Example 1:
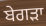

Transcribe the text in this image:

ਬੇਗੜਾ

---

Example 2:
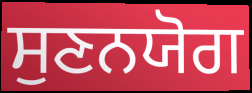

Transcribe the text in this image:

ਸੁਣਨਯੋਗ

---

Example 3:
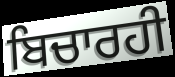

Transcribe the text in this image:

ਬਿਚਾਰਹੀ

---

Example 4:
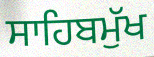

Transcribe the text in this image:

ਸਾਹਿਬਮੁੱਖ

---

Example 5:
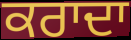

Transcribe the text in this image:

ਕਰਾਦਾ